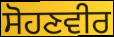
ਸੋਹਣਵੀਰ